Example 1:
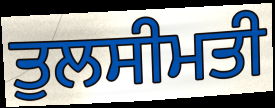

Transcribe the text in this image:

ਤੁਲਸੀਮਤੀ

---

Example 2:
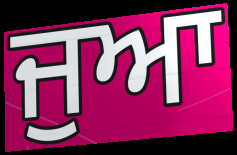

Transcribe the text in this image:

ਜੁਆ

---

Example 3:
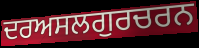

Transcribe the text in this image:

ਦਰਅਸਲਗੁਰਚਰਨ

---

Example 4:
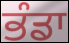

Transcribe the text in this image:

ਭੰਡਾ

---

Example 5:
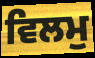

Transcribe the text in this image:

ਵਿਲਮੁ